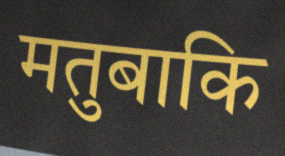
मतुबाकि